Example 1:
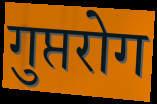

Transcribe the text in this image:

गुप्तरोग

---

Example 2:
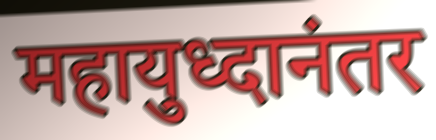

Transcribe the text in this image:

महायुध्दानंतर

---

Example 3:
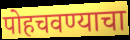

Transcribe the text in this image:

पोहचवण्याचा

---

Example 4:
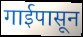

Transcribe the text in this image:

गाईपासून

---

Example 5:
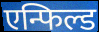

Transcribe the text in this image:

एन्फिल्ड